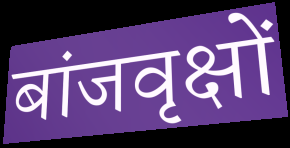
बांजवृक्षों